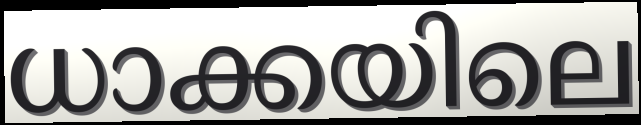
ധാക്കയിലെ